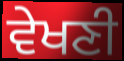
ਵੇਖਣੀ